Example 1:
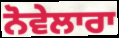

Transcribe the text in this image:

ਨੋਵੇਲਾਰਾ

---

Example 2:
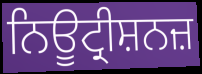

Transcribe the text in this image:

ਨਿਊਟ੍ਰੀਸ਼ਨਜ਼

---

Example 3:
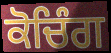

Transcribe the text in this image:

ਕੋਚਿੰਗ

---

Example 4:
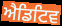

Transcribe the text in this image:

ਐਡਿਟਿਵ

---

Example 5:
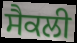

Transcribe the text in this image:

ਸੈਕਲੀ